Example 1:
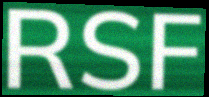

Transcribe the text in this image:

RSF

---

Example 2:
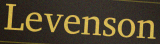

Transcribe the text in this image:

Levenson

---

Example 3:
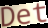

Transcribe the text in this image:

Det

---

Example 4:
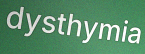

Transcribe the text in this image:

dysthymia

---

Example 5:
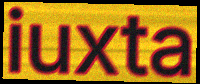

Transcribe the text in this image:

iuxta